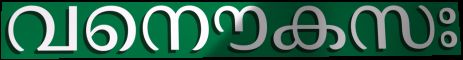
വനൌകസഃ